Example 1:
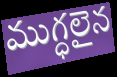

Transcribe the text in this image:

ముగ్ధలైన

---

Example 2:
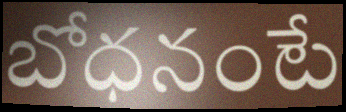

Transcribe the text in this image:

బోధనంటే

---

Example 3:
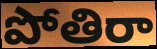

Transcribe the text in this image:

పోతిరా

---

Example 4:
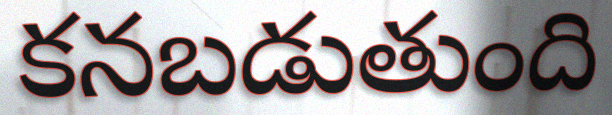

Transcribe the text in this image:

కనబడుతుంది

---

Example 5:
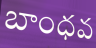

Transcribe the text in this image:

బాంధవ